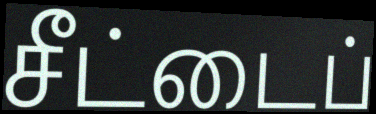
சீட்டைப்